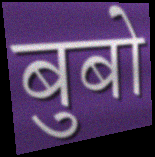
बुबो